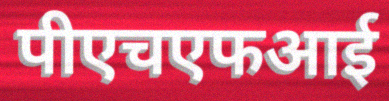
पीएचएफआई